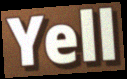
Yell